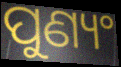
ପୁଣ୍ୟଂ